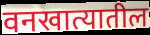
वनखात्यातील